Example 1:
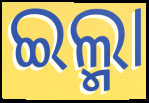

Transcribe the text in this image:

ଇଲ୍ମା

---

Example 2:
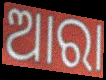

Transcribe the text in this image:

ଆରା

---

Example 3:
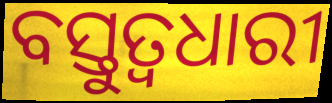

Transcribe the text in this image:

ବସ୍ତୁତ୍ୱଧାରୀ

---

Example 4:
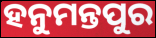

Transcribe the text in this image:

ହନୁମନ୍ତପୁର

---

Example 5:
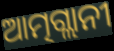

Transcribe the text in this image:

ଆତ୍ମଗ୍ଲାନୀ